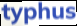
typhus